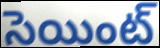
సెయింట్